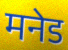
मनेड